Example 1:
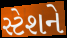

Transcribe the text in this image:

સ્ટેશને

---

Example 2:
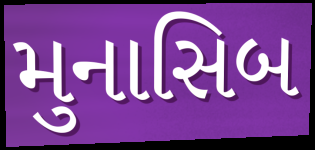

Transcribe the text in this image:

મુનાસિબ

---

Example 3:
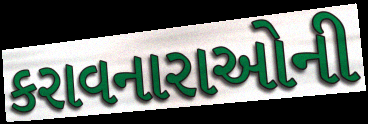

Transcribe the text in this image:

કરાવનારાઓની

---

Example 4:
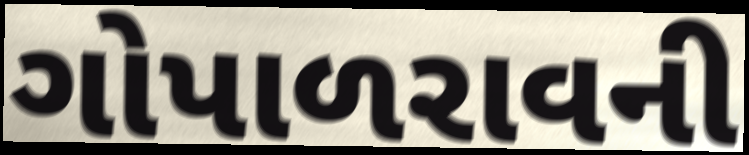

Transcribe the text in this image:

ગોપાળરાવની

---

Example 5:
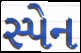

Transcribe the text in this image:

સ્પેન